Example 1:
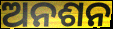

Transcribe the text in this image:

ଅନଶନ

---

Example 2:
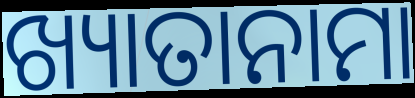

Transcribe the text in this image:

ଖ୍ୟାତାନାମା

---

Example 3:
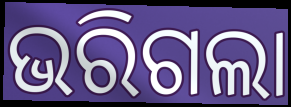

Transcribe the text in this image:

ଭରିଗଲା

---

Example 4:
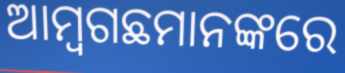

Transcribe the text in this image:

ଆମ୍ବଗଛମାନଙ୍କରେ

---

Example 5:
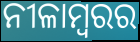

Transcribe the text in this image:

ନୀଳାମ୍ବରର